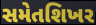
સમેતશિખર